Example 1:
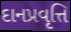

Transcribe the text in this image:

દાનપ્રવૃત્તિ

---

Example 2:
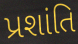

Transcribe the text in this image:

પ્રશાંતિ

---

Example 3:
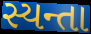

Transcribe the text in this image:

સ્યન્તા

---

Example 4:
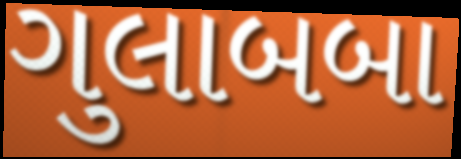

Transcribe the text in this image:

ગુલાબબા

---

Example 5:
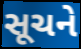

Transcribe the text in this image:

સૂચને